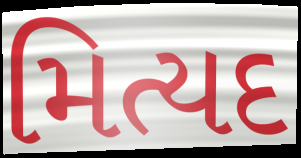
મિત્યદ